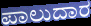
ಪಾಲುದಾರ